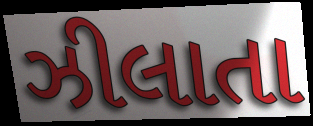
ઝીલાતા